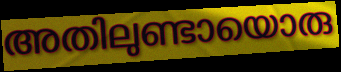
അതിലുണ്ടായൊരു